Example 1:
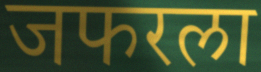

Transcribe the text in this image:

जफरला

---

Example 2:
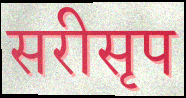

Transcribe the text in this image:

सरीसृप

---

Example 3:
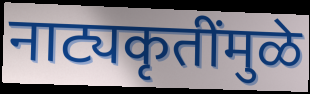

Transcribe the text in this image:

नाट्यकृतींमुळे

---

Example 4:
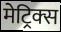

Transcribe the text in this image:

मेट्रिक्‍स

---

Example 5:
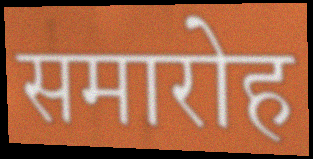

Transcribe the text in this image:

समारोह